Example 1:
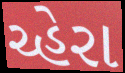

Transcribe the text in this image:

ચ્હેરા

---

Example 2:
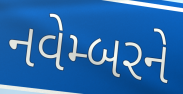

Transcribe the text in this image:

નવેમ્બરને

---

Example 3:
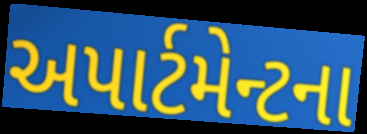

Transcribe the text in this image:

અપાર્ટમેન્ટના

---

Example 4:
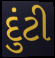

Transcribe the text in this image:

દુંટી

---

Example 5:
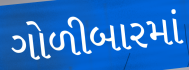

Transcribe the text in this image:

ગોળીબારમાં